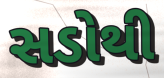
સડોથી